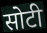
सोटी